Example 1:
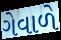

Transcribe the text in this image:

ગેવાળે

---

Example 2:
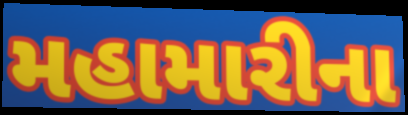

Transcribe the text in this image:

મહામારીના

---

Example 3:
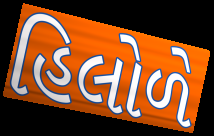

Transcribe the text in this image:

હિલોળે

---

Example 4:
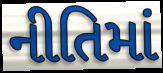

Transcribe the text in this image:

નીતિમાં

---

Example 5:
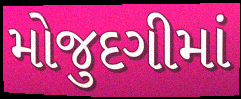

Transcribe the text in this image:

મોજુદગીમાં